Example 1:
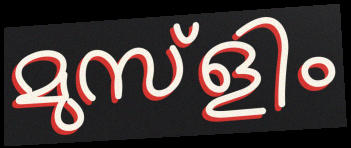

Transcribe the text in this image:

മുസ്ളിം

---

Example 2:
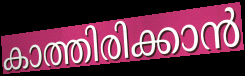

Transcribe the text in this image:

കാത്തിരിക്കാൻ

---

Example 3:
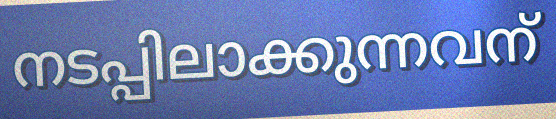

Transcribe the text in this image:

നടപ്പിലാക്കുന്നവന്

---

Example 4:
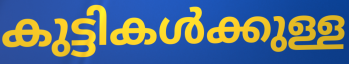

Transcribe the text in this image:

കുട്ടികൾക്കുള്ള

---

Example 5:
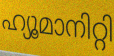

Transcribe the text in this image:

ഹ്യൂമാനിറ്റി